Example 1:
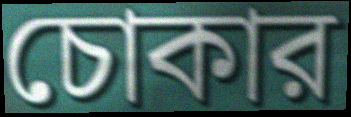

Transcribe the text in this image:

চোকার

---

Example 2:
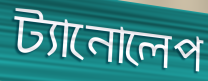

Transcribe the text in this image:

ট্যানোলেপ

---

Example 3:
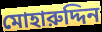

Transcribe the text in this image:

মোহারুদ্দিন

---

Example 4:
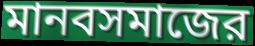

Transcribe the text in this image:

মানবসমাজের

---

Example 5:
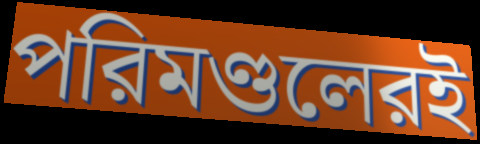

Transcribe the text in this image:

পরিমণ্ডলেরই